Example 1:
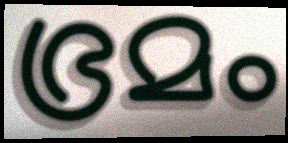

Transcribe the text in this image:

ഭ്രമം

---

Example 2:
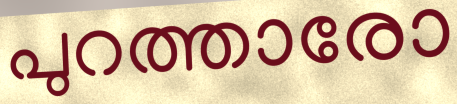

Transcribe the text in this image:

പുറത്താരോ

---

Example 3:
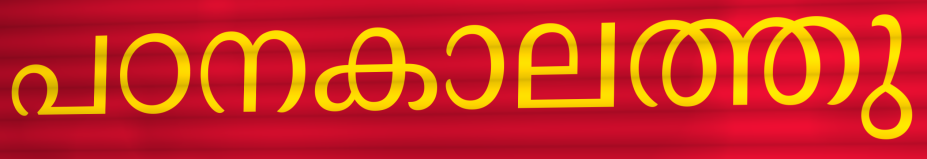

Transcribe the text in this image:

പഠനകാലത്തു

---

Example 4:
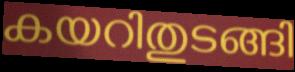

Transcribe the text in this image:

കയറിതുടങ്ങി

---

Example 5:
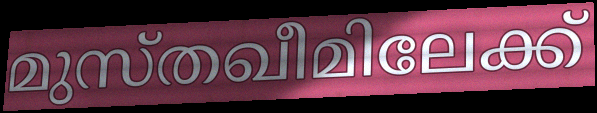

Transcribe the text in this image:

മുസ്തഖീമിലേക്ക്